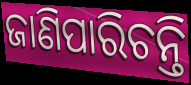
ଜାଣିପାରିଚନ୍ତି